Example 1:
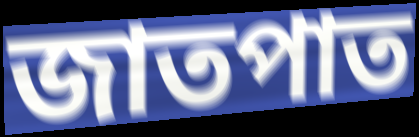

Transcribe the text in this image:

জাতপাত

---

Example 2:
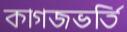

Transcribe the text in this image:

কাগজভর্তি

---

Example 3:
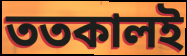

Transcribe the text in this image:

ততকালই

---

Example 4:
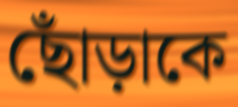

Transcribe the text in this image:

ছোঁড়াকে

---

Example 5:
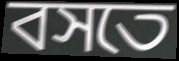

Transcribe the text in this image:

বসতে